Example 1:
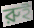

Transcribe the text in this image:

রুই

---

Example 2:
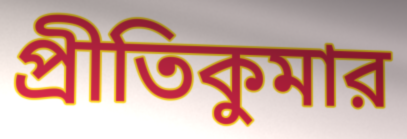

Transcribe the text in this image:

প্রীতিকুমার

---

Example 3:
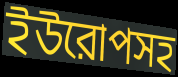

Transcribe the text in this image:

ইউরোপসহ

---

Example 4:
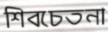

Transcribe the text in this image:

শিবচেতনা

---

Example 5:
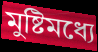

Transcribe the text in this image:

মুষ্টিমধ্যে